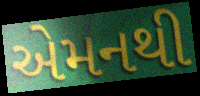
એમનથી